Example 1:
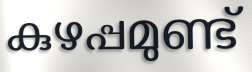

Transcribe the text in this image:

കുഴപ്പമുണ്ട്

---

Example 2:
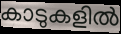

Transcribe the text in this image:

കാടുകളിൽ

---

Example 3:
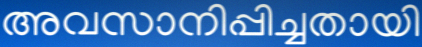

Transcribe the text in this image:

അവസാനിപ്പിച്ചതായി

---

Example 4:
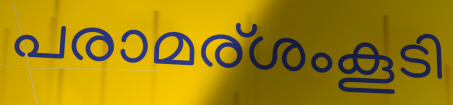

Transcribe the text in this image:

പരാമര്ശംകൂടി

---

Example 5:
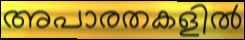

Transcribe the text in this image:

അപാരതകളിൽ